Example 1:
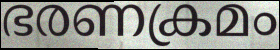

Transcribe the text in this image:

ഭരണക്രമം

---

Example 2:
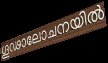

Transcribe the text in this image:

ഗൂഢാലോചനയിൽ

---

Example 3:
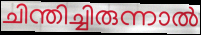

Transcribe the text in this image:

ചിന്തിച്ചിരുന്നാൽ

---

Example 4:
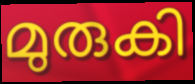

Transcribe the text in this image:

മുരുകി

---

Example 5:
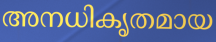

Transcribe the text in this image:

അനധികൃതമായ